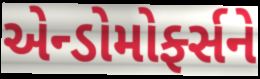
એન્ડોમોર્ફ્સને